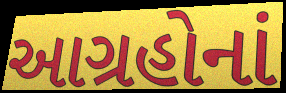
આગ્રહોનાં